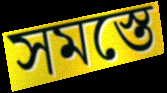
সমস্তে